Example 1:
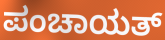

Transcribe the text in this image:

ಪಂಚಾಯತ್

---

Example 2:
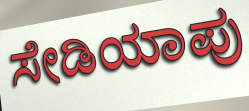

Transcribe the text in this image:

ಸೇಡಿಯಾಪು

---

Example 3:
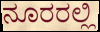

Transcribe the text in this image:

ನೂರರಲ್ಲಿ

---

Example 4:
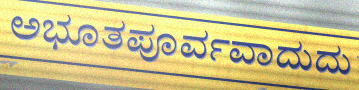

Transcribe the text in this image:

ಅಭೂತಪೂರ್ವವಾದುದು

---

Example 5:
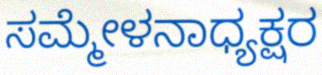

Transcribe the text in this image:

ಸಮ್ಮೇಳನಾಧ್ಯಕ್ಷರ